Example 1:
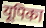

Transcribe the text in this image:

यूपिका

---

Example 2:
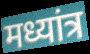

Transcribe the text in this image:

मध्यांत्र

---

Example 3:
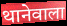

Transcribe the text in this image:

थानेवाला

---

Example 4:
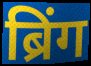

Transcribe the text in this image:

ब्रिंग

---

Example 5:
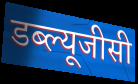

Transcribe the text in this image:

डब्ल्यूजीसी